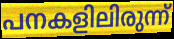
പനകളിലിരുന്ന്